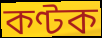
কণ্টক